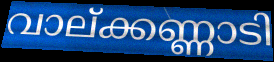
വാല്ക്കണ്ണാടി